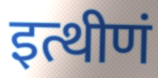
इत्थीणं